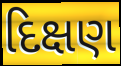
દિક્ષણ